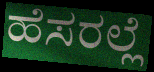
ಹೆಸರಲ್ಲೆ